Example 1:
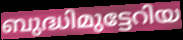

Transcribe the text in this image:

ബുദ്ധിമുട്ടേറിയ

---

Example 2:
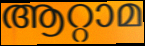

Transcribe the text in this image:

ആറ്റാമ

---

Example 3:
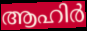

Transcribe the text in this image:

ആഹിർ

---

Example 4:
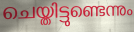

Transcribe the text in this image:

ചെയ്തിട്ടുണ്ടെന്നും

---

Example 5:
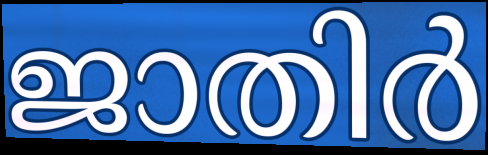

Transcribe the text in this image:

ജാതിർ